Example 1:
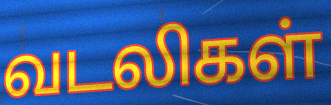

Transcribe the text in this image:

வடலிகள்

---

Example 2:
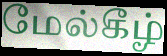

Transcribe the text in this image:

மேல்கீழ்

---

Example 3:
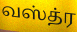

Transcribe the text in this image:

வஸ்த்ர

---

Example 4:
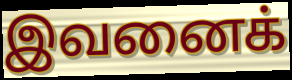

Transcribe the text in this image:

இவனைக்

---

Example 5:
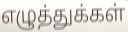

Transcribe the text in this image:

எழுத்துக்கள்